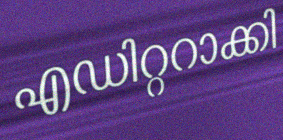
എഡിറ്ററാക്കി